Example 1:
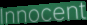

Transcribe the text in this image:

Innocent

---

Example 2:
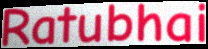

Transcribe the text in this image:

Ratubhai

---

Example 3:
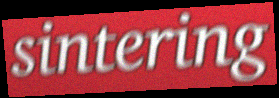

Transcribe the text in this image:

sintering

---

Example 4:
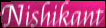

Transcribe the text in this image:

Nishikant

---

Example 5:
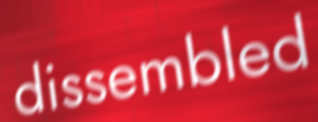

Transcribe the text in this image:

dissembled